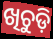
ଖିଚୁଡ଼ି